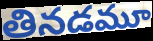
తినడమూ